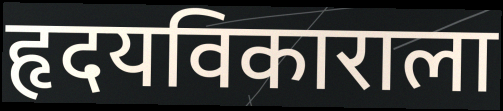
हृदयविकाराला